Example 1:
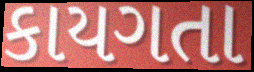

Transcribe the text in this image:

કાયગતા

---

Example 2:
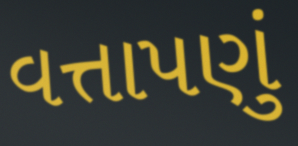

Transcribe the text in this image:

વત્તાપણું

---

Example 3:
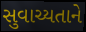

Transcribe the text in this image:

સુવાચ્યતાને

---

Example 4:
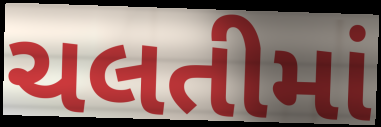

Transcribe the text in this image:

ચલતીમાં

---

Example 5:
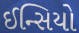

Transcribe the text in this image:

ઈન્સિયો